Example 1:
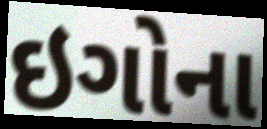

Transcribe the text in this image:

ઇગોના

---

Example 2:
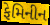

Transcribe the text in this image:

ફેમિનીન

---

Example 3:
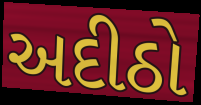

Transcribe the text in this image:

અદીઠો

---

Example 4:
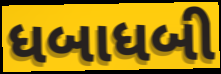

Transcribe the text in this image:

ધબાધબી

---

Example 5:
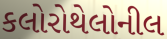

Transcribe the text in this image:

કલોરોથેલોનીલ